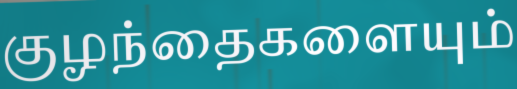
குழந்தைகளையும்